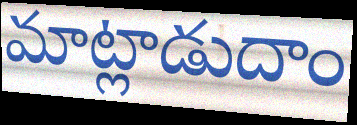
మాట్లాడుదాం